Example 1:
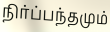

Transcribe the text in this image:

நிர்ப்பந்தமும்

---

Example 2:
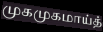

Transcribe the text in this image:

முகமுகமாய்த்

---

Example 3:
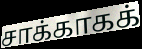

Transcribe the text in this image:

சாக்காகக்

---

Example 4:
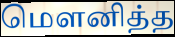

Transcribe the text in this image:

மௌனித்த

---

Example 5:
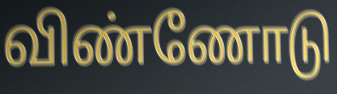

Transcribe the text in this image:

விண்ணோடு